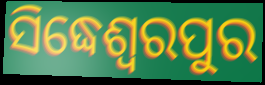
ସିଦ୍ଧେଶ୍ଵରପୁର